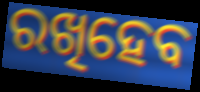
ରଖିହେବ